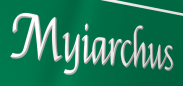
Myiarchus